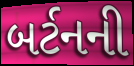
બર્ટનની